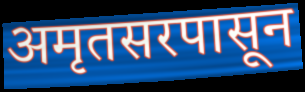
अमृतसरपासून